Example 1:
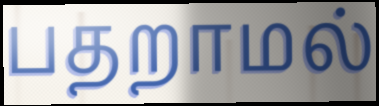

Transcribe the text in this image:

பதறாமல்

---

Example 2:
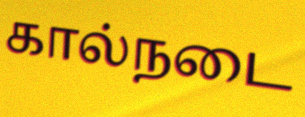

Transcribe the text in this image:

கால்நடை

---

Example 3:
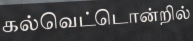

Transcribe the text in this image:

கல்வெட்டொன்றில்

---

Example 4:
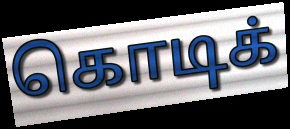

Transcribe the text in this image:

கொடிக்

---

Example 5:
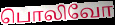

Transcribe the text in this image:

பொலிவோ